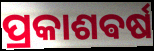
ପ୍ରକାଶଵର୍ଷ